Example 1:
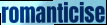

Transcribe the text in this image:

romanticise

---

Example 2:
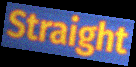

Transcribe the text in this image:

Straight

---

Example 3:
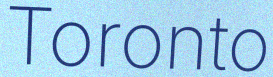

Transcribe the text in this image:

Toronto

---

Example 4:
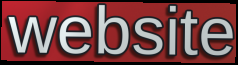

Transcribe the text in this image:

website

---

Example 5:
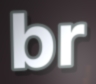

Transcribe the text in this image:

br